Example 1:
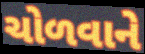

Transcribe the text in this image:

ચોળવાને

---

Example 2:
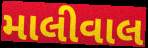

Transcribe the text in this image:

માલીવાલ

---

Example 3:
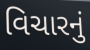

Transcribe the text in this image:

વિચારનું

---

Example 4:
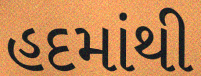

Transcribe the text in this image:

હદમાંથી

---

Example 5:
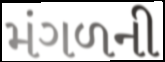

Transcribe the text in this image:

મંગળની